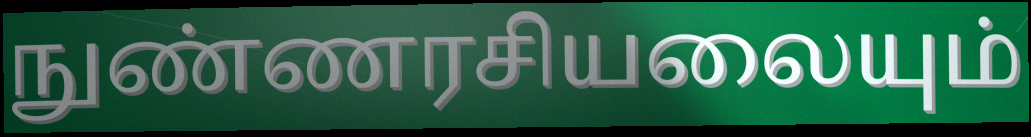
நுண்ணரசியலையும்